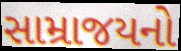
સામ્રાજયનો